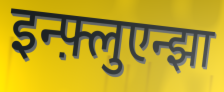
इन्फ़्लुएन्झा